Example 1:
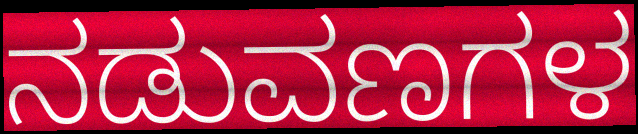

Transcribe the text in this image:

ನಡುವಣಗಳ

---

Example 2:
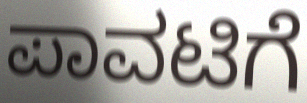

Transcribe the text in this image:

ಪಾವಟಿಗೆ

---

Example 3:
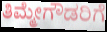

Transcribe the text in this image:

ತಿಮ್ಮೇಗೌಡರಿಗೆ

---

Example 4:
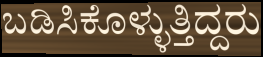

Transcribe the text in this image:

ಬಡಿಸಿಕೊಳ್ಳುತ್ತಿದ್ದರು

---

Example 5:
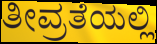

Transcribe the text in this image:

ತೀವ್ರತೆಯಲ್ಲಿ